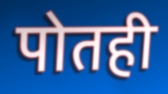
पोतही